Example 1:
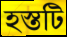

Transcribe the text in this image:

হস্তটি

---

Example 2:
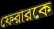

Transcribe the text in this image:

ফেরারকে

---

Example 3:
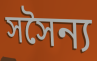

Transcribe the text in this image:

সসৈন্য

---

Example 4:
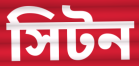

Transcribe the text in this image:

সিটন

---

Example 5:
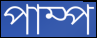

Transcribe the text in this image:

পাম্প